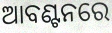
ଆବଣ୍ଟନରେ